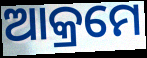
ଆକ୍ରମେ